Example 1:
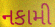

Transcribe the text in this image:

નકામી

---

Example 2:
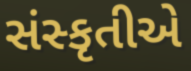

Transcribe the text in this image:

સંસ્કૃતીએ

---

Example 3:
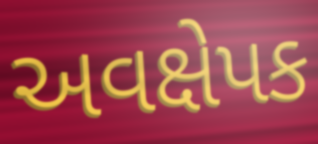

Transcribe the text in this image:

અવક્ષેપક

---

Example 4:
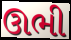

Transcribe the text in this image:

ઊભી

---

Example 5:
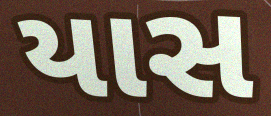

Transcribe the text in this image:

યાસ